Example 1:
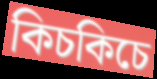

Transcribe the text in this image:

কিচকিচে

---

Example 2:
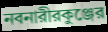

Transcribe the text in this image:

নবনারীরকুঞ্জের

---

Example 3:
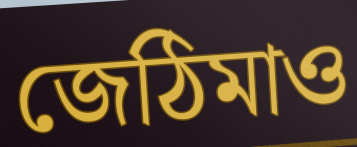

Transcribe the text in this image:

জেঠিমাও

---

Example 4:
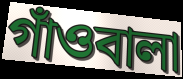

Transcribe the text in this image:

গাঁওবালা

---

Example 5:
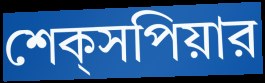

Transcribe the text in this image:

শেক্‌সপিয়ার